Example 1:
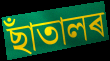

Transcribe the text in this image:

ছাঁতালৰ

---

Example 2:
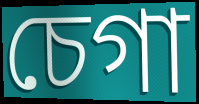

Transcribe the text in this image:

চেগা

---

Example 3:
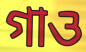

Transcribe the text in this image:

গাও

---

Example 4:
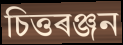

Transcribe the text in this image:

চিত্তৰঞ্জন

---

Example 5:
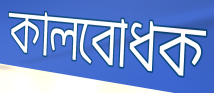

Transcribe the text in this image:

কালবোধক